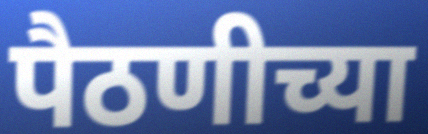
पैठणीच्या